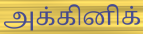
அக்கினிக்